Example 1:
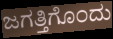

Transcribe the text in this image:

ಜಗತ್ತಿಗೊಂದು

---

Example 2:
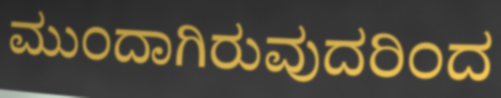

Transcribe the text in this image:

ಮುಂದಾಗಿರುವುದರಿಂದ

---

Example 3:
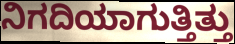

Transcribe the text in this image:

ನಿಗದಿಯಾಗುತ್ತಿತ್ತು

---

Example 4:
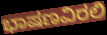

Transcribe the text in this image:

ಭಾಷಣವಿರಲಿ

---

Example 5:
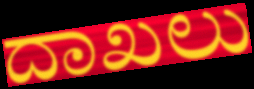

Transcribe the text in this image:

ದಾಖಲು